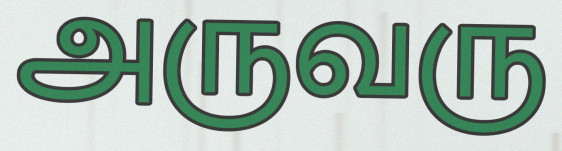
அருவரு